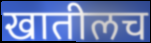
खातीलच